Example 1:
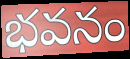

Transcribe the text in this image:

భవనం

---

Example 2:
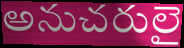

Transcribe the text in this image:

అనుచరులై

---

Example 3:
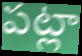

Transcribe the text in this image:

పట్లా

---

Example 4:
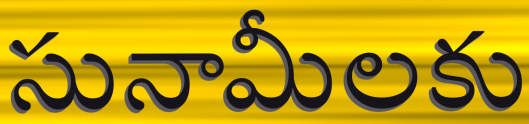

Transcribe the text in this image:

సునామీలకు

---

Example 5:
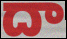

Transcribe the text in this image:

దా